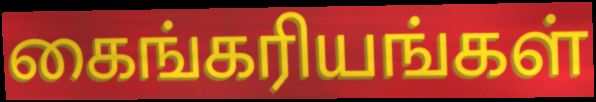
கைங்கரியங்கள்